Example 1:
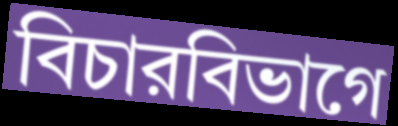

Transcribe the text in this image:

বিচারবিভাগে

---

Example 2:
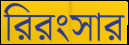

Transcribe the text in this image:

রিরংসার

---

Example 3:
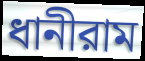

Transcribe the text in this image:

ধানীরাম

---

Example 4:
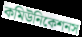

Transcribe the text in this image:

কমিউনিকেশনস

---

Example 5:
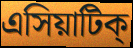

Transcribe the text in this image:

এসিয়াটিক্